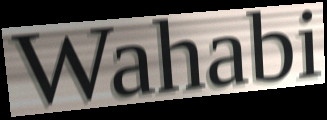
Wahabi